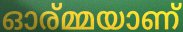
ഓര്മ്മയാണ്